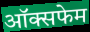
ऑक्सफेम